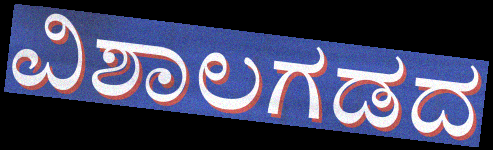
ವಿಶಾಲಗಡದ